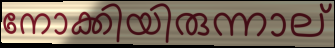
നോക്കിയിരുന്നാല്